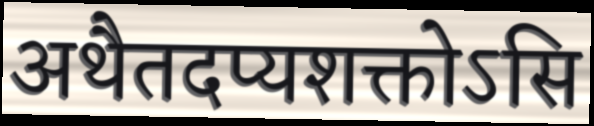
अथैतदप्यशक्तोऽसि